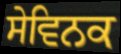
ਸੇਵਿਨਕ